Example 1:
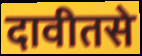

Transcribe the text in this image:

दावीतसे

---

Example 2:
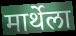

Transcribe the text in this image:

मार्थेला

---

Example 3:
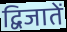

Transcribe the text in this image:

द्विजातें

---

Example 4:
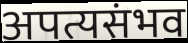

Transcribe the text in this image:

अपत्यसंभव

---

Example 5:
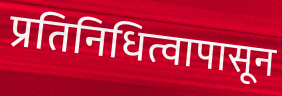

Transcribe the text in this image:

प्रतिनिधित्वापासून